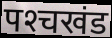
पश्चखंड